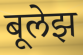
बूलेझ